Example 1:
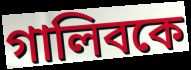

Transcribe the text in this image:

গালিবকে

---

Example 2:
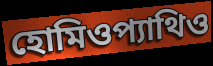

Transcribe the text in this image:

হোমিওপ্যাথিও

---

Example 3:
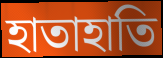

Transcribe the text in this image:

হাতাহাতি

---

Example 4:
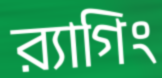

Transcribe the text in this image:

র‍্যাগিং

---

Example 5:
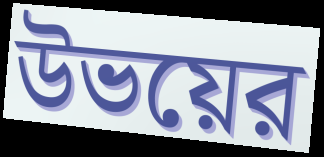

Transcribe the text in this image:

উভয়ের